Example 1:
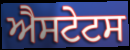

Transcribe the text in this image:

ਐਸਟੇਟਸ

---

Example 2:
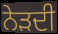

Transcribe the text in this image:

ਨੇੜਦੀ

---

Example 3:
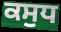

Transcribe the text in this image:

ਕਸੁਧ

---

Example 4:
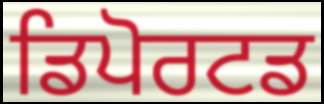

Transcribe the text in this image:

ਡਿਪੋਰਟਡ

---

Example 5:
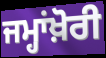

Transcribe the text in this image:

ਜਮ੍ਹਾਂਖ਼ੋਰੀ